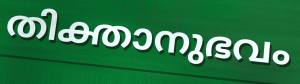
തിക്താനുഭവം